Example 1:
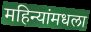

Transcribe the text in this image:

महिन्यांमधला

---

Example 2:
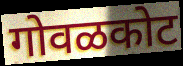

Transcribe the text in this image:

गोवळकोट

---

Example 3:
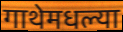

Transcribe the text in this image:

गाथेमधल्या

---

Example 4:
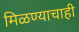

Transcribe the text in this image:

मिळण्याचाही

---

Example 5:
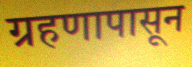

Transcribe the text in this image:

ग्रहणापासून